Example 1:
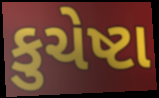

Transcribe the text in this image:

કુચેષ્ટા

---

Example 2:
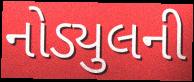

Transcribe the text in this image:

નોડ્યુલની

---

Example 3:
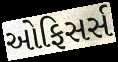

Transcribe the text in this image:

ઓફિસર્સ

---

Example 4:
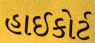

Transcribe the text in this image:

હાઈકોર્ટ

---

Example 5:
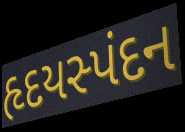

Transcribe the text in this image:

હૃદયસ્પંદન